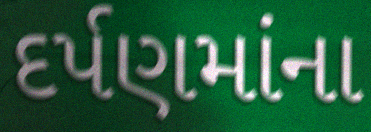
દર્પણમાંના